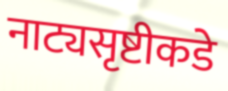
नाट्यसृष्टीकडे